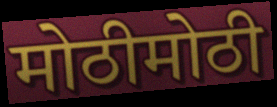
मोठीमोठी